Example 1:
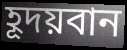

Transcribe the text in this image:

হূদয়বান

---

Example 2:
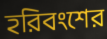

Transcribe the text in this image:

হরিবংশের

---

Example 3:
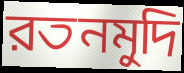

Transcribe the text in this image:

রতনমুদি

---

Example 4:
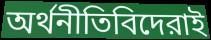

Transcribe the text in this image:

অর্থনীতিবিদেরাই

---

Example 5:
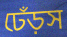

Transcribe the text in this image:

ঢেঁড়স